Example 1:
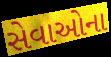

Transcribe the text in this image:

સેવાઓના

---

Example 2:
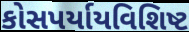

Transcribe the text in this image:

કોસપર્યાયવિશિષ્ટ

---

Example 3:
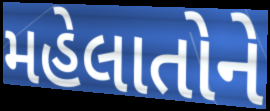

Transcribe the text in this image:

મહેલાતોને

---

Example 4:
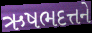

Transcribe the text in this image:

ઋષભદત્તને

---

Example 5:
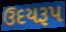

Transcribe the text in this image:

ઉદયરૂપ